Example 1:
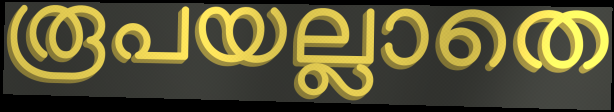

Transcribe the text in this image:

രൂപയല്ലാതെ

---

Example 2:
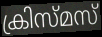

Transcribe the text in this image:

ക്രിസ്മസ്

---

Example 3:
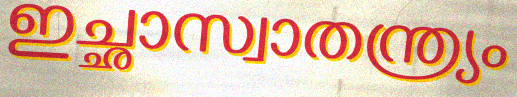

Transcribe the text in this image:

ഇച്ഛാസ്വാതന്ത്ര്യം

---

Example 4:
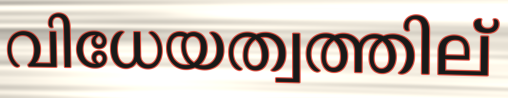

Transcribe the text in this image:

വിധേയത്വത്തില്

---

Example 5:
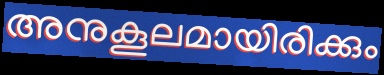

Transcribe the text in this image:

അനുകൂലമായിരിക്കും